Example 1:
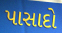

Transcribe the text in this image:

પાસાદો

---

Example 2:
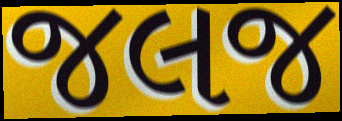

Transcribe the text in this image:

જલજ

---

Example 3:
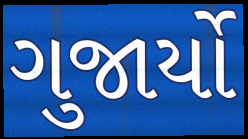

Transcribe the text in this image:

ગુજાર્યો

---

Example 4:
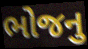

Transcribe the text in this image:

ભોજનુ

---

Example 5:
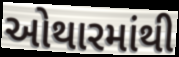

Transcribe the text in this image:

ઓથારમાંથી